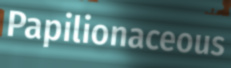
Papilionaceous